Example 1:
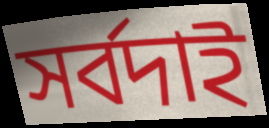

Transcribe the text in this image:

সর্বদাই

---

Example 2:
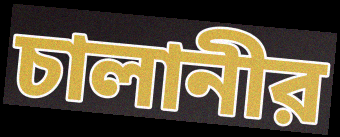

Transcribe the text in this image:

চালানীর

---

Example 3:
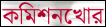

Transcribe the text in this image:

কমিশনখোর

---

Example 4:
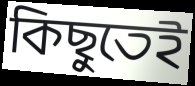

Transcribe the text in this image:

কিছুতেই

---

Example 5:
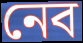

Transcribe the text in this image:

নেব